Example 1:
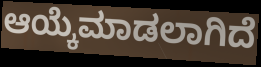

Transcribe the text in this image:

ಆಯ್ಕೆಮಾಡಲಾಗಿದೆ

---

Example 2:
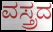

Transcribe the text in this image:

ವಸ್ತ್ರದ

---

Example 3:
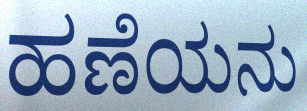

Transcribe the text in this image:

ಹಣೆಯನು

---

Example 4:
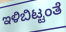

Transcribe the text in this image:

ಇಳಿಬಿಟ್ಟಂತೆ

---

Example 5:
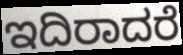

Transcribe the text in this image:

ಇದಿರಾದರೆ